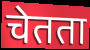
चेतता